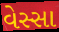
વેસ્સા